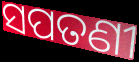
ସପତଣୀ